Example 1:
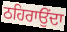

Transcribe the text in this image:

ਠਹਿਰਾਉਂਦਾ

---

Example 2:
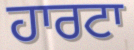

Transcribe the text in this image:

ਹਾਰਟਾ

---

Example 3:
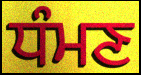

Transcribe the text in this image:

ਧੰਮਣ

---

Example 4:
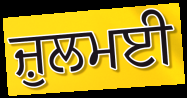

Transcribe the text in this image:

ਜ਼ੁਲਮਈ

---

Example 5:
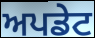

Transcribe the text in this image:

ਅਪਡੇਟ